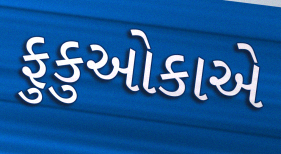
ફુકુઓકાએ